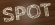
SPOT